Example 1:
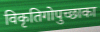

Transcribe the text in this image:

विकृतिगोपुच्छाका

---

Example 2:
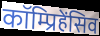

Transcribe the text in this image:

कॉम्प्रिहेंसिव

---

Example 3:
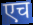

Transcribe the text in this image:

एच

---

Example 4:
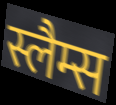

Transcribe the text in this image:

स्लैम्स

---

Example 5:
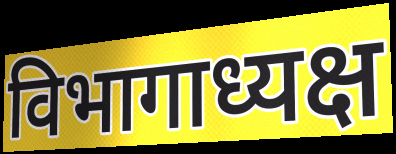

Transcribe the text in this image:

विभागाध्यक्ष